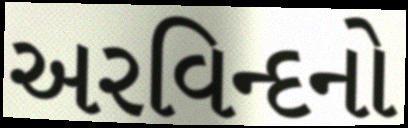
અરવિન્દનો